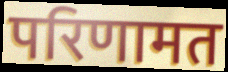
परिणामत